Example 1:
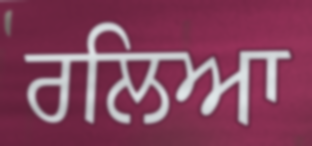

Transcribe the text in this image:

ਰਲਿਆ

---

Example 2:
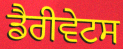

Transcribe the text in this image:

ਡੈਰੀਵੇਟਸ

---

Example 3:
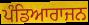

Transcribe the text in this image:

ਪੰਡਿਆਰਾਜਨ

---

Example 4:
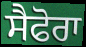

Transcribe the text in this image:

ਸੈਫੋਰਾ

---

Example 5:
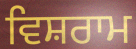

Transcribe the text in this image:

ਵਿਸ਼ਰਾਮ